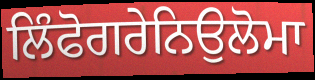
ਲਿੰਫੋਗਰੇਨਿਉਲੋਮਾ